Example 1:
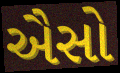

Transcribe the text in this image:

ઐસો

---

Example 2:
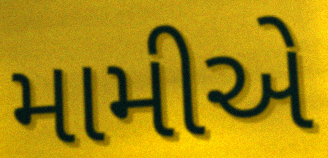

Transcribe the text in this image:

મામીએ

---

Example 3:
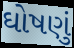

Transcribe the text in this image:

ઘોષણું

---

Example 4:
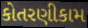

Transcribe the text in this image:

કોતરણીકામ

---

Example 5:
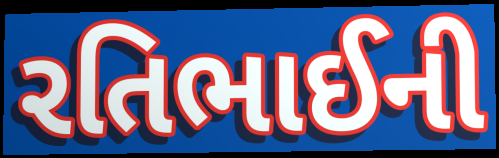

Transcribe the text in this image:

રતિભાઈની